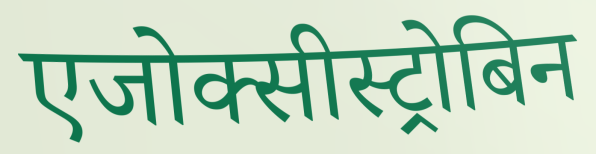
एजोक्सीस्ट्रोबिन